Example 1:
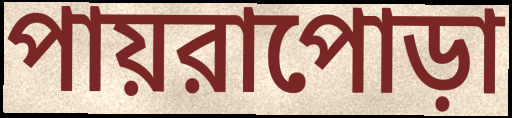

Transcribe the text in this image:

পায়রাপোড়া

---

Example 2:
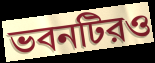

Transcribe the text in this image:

ভবনটিরও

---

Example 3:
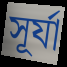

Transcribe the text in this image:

সূর্যা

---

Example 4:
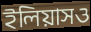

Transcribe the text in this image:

ইলিয়াসও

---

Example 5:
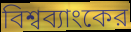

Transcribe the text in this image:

বিশ্বব্যাংকের